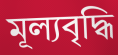
মূল্যবৃদ্ধি